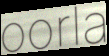
oorla